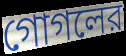
গোগলের